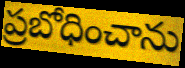
ప్రబోధించాను